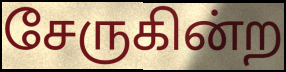
சேருகின்ற